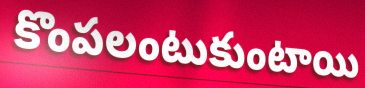
కొంపలంటుకుంటాయి